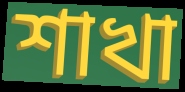
শাখা